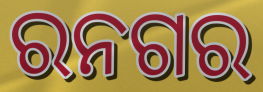
ରନଗର